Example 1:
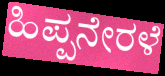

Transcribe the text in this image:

ಹಿಪ್ಪನೇರಳೆ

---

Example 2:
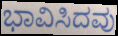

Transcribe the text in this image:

ಭಾವಿಸಿದವು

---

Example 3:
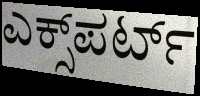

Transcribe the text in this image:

ಎಕ್ಸ್‌ಪರ್ಟ್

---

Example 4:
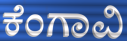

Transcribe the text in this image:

ಕೆಂಗಾವಿ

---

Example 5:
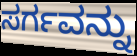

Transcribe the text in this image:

ಸರ್ಗವನ್ನು